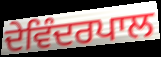
ਦੇਵਿੰਦਰਪਾਲ